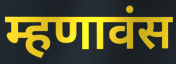
म्हणावंस